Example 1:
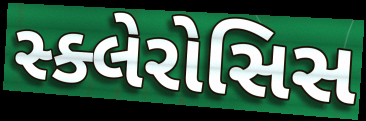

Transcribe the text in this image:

સ્ક્લેરોસિસ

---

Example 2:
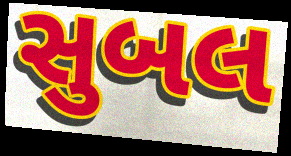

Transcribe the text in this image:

સુબલ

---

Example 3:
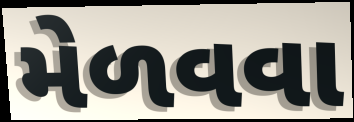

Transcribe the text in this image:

મેળવવા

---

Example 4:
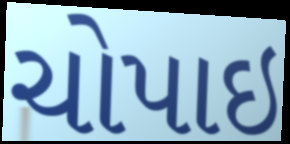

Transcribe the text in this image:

ચોપાઇ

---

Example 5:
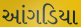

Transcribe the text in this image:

આંગડિયા